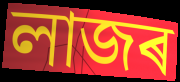
লাজৰ